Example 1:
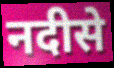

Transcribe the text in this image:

नदीसे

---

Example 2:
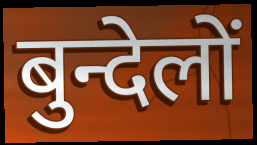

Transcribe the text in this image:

बुन्देलों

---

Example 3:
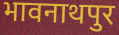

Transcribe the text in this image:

भावनाथपुर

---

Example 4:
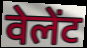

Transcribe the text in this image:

वेलेंट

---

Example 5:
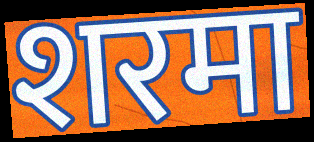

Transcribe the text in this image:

शरमा